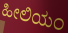
ಹೀಲಿಯಂ